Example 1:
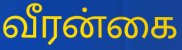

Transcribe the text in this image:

வீரன்கை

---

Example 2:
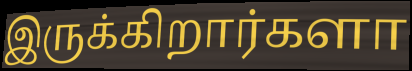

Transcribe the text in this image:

இருக்கிறார்களா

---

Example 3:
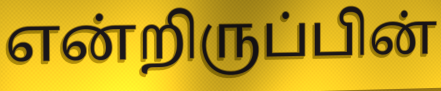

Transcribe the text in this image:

என்றிருப்பின்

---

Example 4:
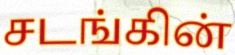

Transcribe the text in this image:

சடங்கின்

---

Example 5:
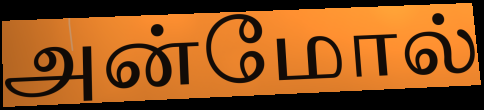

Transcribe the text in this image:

அன்மோல்